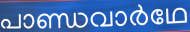
പാണ്ഡവാർഥേ